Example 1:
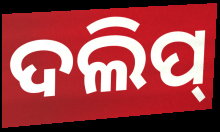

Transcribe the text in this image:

ଦଲିପ୍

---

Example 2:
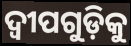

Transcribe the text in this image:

ଦ୍ୱୀପଗୁଡ଼ିକୁ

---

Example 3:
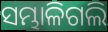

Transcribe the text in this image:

ସମ୍ଭାଳିଗଲି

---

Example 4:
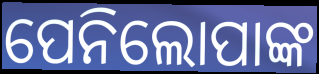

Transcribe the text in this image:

ପେନିଲୋପାଙ୍କ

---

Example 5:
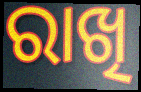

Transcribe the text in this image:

ରାଖି